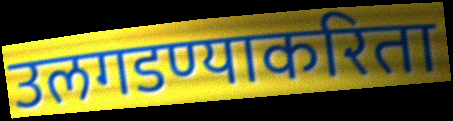
उलगडण्याकरिता